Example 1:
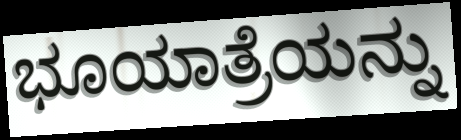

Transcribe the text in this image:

ಭೂಯಾತ್ರೆಯನ್ನು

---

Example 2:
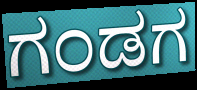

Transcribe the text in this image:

ಗಂಡಗ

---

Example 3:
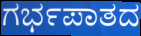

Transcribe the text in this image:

ಗರ್ಭಪಾತದ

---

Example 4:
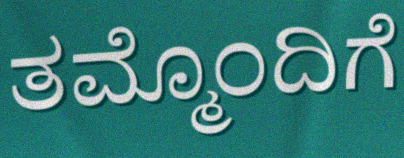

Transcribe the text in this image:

ತಮ್ಮೊಂದಿಗೆ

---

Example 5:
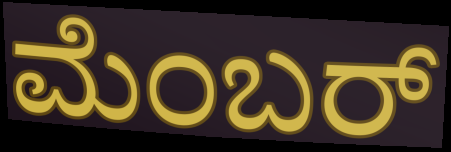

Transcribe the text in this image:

ಮೆಂಬರ್